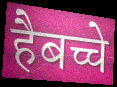
हैबच्चे